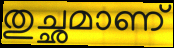
തുച്ഛമാണ്